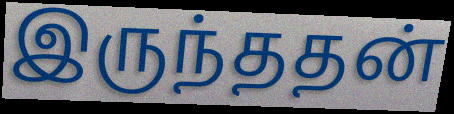
இருந்ததன்